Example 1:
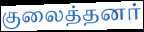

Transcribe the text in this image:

குலைத்தனர்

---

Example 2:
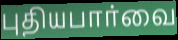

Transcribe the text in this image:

புதியபார்வை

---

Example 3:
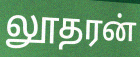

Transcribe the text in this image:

லூதரன்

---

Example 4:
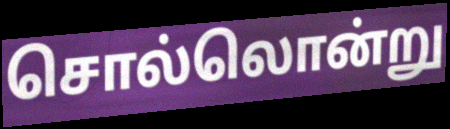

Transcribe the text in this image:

சொல்லொன்று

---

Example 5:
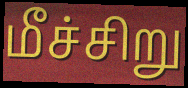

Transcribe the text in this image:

மீச்சிறு